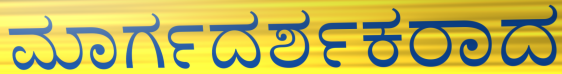
ಮಾರ್ಗದರ್ಶಕರಾದ